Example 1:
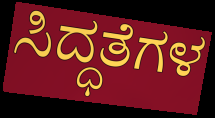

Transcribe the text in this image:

ಸಿದ್ಧತೆಗಳ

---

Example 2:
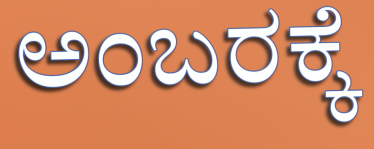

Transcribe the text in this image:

ಅಂಬರಕ್ಕೆ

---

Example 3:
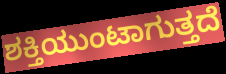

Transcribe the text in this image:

ಶಕ್ತಿಯುಂಟಾಗುತ್ತದೆ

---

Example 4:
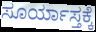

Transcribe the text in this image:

ಸೂರ್ಯಾಸ್ತಕ್ಕೆ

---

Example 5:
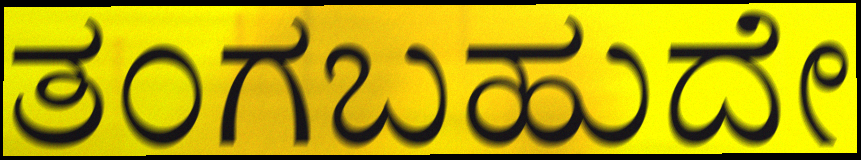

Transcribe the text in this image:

ತಂಗಬಹುದೇ